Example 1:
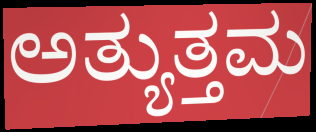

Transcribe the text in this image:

ಅತ್ಯುತ್ತಮ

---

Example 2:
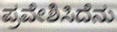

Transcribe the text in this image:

ಪ್ರವೇಶಿಸಿದೆನು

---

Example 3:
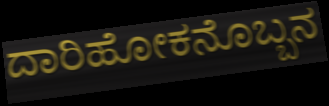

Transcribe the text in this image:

ದಾರಿಹೋಕನೊಬ್ಬನ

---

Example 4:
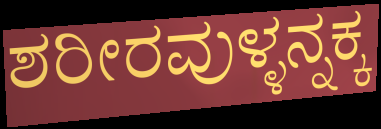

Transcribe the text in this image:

ಶರೀರವುಳ್ಳನ್ನಕ್ಕ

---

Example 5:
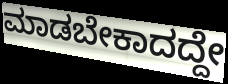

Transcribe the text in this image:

ಮಾಡಬೇಕಾದದ್ದೇ